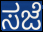
ಸಜೆ